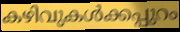
കഴിവുകൾക്കപ്പുറം